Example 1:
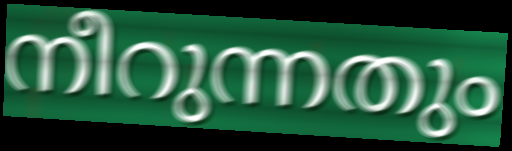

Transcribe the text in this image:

നീറുന്നതും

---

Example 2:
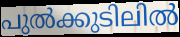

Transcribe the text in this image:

പുൽക്കുടിലിൽ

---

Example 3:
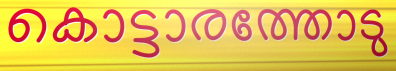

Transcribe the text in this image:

കൊട്ടാരത്തോടു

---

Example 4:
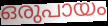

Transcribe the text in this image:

ഒരുപായം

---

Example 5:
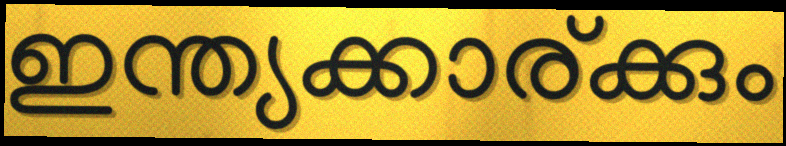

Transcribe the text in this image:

ഇന്ത്യക്കാര്ക്കും